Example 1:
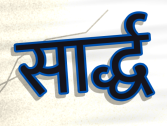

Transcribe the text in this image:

सार्द्ध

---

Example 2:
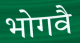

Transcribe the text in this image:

भोगवै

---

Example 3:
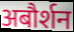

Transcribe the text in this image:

अबौर्शन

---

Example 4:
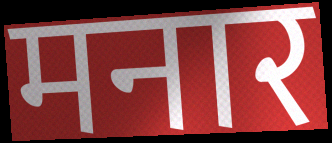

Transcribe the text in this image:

मनार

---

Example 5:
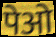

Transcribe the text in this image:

पेओ